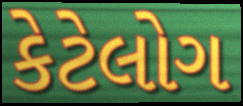
કેટેલોગ